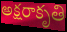
అక్షరాకృతి